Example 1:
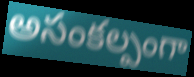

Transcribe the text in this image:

అసంకల్పంగా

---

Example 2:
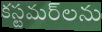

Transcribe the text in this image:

కస్టమర్‌లను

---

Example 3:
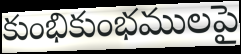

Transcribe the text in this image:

కుంభికుంభములపై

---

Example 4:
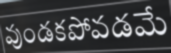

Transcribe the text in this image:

వుండకపోవడమే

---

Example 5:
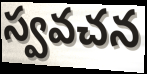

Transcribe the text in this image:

స్వవచన